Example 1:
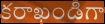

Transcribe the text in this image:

కరాఖండిగా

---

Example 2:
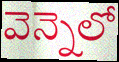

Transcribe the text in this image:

వెన్నెలో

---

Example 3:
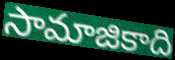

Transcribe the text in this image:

సామాజికాది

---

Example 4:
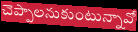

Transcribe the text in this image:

చెప్పాలనుకుంటున్నావో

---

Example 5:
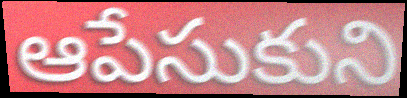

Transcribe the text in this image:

ఆపేసుకుని